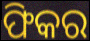
ଫିକର